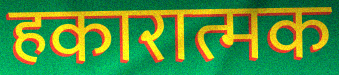
हकारात्मक